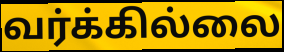
வர்க்கில்லை